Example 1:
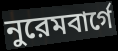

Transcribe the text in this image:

নুরেমবার্গে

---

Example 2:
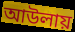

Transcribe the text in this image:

আউলায়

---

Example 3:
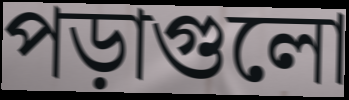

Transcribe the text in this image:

পড়াগুলো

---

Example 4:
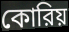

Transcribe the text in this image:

কোরিয়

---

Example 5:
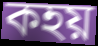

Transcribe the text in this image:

কহয়